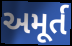
અમૂર્ત